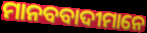
ମାନବବାଦୀମାନେ